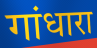
गांधारा